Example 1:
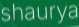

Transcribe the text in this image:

shaurya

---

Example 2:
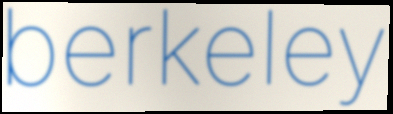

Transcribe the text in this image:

berkeley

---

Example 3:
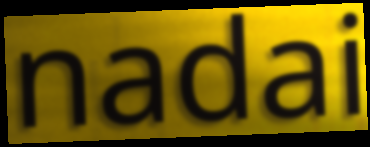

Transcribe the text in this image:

nadai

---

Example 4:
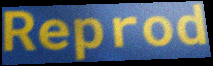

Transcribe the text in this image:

Reprod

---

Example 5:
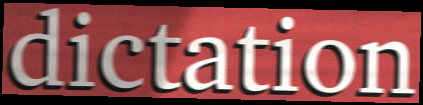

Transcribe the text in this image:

dictation